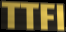
TTFI